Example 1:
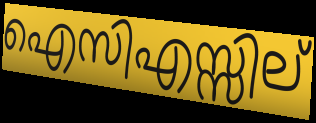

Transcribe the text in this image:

ഐസിഎസ്സില്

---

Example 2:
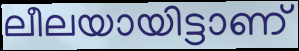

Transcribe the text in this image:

ലീലയായിട്ടാണ്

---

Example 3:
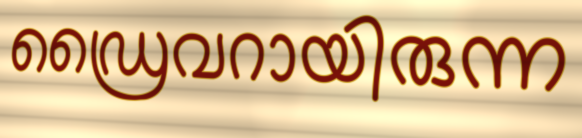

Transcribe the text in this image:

ഡ്രൈവറായിരുന്ന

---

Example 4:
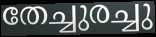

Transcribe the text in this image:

തേച്ചുരച്ചു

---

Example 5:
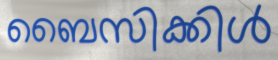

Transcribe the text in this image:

ബൈസിക്കിൾ